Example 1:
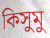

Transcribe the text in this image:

কিসুমু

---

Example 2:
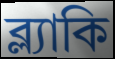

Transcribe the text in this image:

ব্ল্যাকি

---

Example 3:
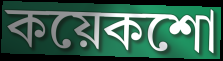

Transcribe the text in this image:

কয়েকশো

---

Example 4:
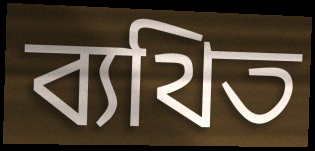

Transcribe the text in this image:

ব্যথিত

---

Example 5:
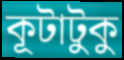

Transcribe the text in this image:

কূটাটুকু